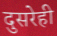
दुसरेही